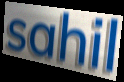
sahil